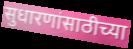
सुधारणांसाठीच्या